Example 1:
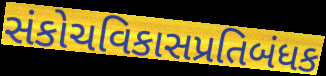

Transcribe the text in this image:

સંકોચવિકાસપ્રતિબંધક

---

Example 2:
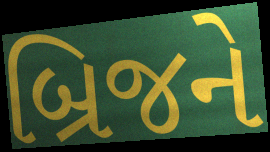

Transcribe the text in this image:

બ્રિજને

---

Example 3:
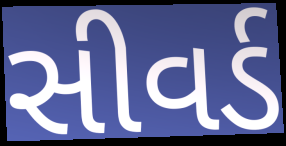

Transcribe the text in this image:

સીવર્ડ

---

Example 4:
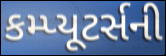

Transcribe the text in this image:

કમ્પ્યૂટર્સની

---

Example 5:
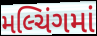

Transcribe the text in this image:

મલ્ચિંગમાં